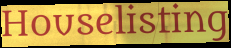
Houselisting